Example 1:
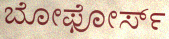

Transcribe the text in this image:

ಬೋಫೋರ್ಸ್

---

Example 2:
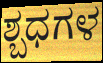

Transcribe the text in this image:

ಶ್ಬಧಗಳ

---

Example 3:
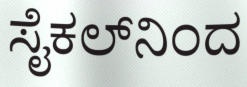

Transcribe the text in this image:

ಸೈಕಲ್‌ನಿಂದ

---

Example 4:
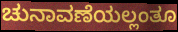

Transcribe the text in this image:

ಚುನಾವಣೆಯಲ್ಲಂತೂ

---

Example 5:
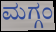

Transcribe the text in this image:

ಮಗ್ಗಂ